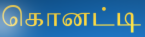
கொனட்டி